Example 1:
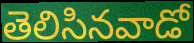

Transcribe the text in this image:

తెలిసినవాడో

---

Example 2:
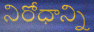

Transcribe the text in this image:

నిరోధాన్ని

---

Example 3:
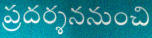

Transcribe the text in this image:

ప్రదర్శననుంచి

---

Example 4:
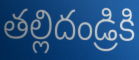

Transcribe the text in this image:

తల్లిదండ్రికి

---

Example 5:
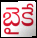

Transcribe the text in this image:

బైకే